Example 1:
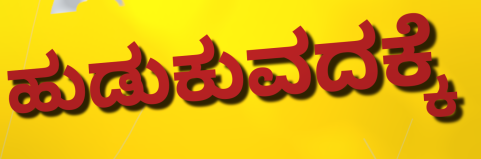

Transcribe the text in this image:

ಹುಡುಕುವದಕ್ಕೆ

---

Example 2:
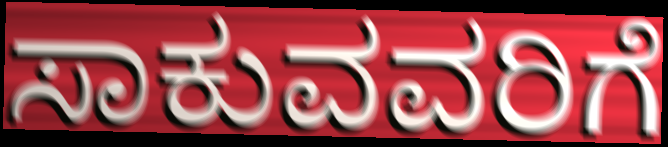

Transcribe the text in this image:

ಸಾಕುವವರಿಗೆ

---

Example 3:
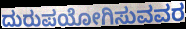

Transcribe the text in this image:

ದುರುಪಯೋಗಿಸುವವರ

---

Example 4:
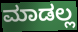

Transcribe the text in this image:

ಮಾಡಲ್ಲ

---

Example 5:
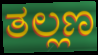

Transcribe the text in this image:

ತಲ್ಲಣ